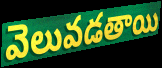
వెలువడతాయి